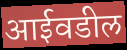
आईवडील